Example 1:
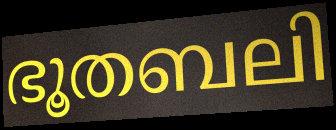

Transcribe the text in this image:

ഭൂതബലി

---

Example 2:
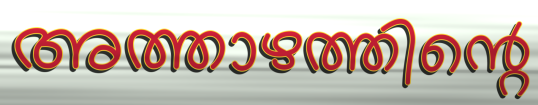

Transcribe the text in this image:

അത്താഴത്തിന്റെ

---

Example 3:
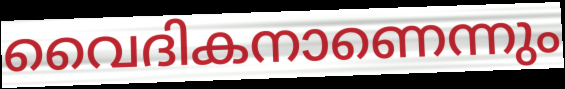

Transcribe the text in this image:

വൈദികനാണെന്നും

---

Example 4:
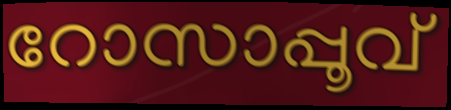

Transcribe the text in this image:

റോസാപ്പൂവ്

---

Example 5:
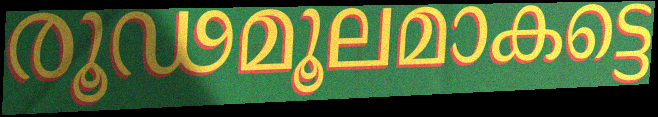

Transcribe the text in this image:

രൂഢമൂലമാകട്ടെ